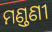
ମଣ୍ଡଣୀ